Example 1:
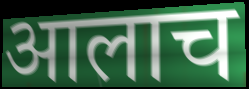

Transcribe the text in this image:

आलाच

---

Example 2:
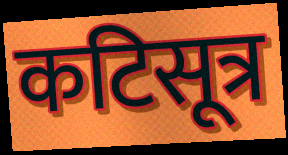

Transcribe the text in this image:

कटिसूत्र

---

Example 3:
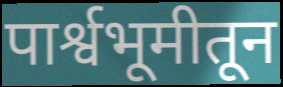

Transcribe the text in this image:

पार्श्वभूमीतून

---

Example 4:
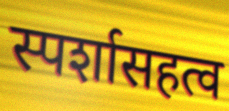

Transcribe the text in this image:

स्पर्शासहत्व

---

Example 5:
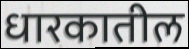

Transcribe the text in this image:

धारकातील